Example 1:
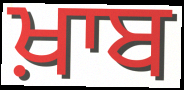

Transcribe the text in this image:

ਖ਼ਾਬ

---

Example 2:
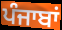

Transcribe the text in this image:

ਪੰਜਾਬਾਂ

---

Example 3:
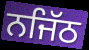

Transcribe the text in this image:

ਨਜਿੱਠ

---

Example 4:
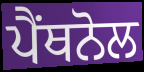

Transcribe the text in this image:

ਪੈਂਥਨੋਲ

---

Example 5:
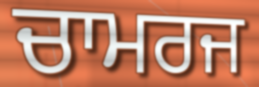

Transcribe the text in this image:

ਚਾਮਰਜ